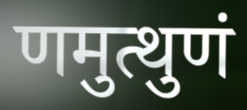
णमुत्थुणं